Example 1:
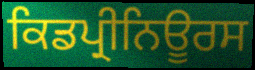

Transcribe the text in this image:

ਕਿਡਪ੍ਰੀਨਿਊਰਸ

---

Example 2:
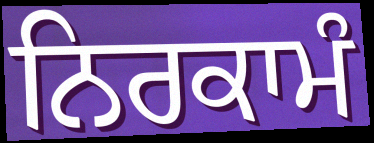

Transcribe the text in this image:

ਨਿਰਕਾਮੰ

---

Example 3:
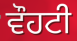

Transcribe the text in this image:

ਵੌਹਟੀ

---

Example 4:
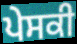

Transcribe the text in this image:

ਪੇਸਕੀ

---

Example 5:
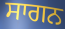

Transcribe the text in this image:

ਸਾਗਨ